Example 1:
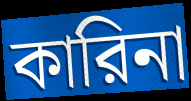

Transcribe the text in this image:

কারিনা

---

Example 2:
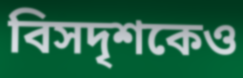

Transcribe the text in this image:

বিসদৃশকেও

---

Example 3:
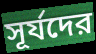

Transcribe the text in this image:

সূর্যদের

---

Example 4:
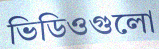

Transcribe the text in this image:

ভিডিওগুলো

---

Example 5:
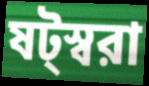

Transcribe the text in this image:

ষট্স্বরা